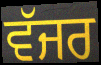
ਵੱਜਰ